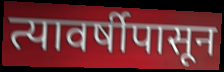
त्यावर्षीपासून